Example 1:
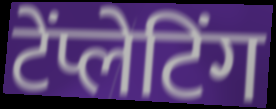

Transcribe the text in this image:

टेंप्लेटिंग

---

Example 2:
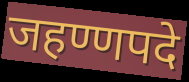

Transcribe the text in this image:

जहण्णपदे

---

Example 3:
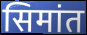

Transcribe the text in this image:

सिमांत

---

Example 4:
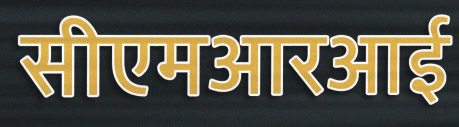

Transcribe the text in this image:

सीएमआरआई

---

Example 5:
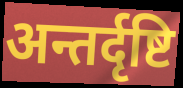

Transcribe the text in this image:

अन्तर्दृष्टि